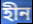
হীন